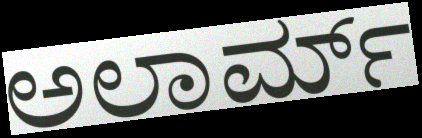
ಅಲಾರ್ಮ್